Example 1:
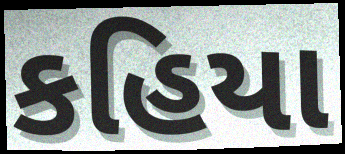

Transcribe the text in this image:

કહિયા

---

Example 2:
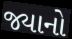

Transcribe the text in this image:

જ્યાનો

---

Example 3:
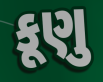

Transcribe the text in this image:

કૂણુ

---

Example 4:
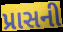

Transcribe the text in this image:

પ્રાસની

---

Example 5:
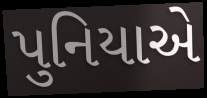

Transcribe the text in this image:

પુનિયાએ